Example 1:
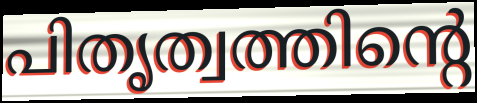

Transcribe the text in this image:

പിതൃത്വത്തിന്റെ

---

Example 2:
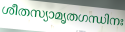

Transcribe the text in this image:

ശീതസ്യാമൃതഗന്ധിനഃ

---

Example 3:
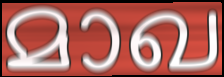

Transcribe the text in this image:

മാഖ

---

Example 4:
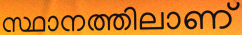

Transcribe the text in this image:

സ്ഥാനത്തിലാണ്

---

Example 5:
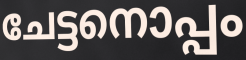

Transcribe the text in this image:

ചേട്ടനൊപ്പം